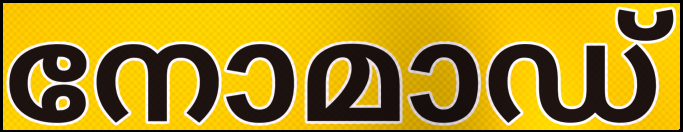
നോമാഡ്